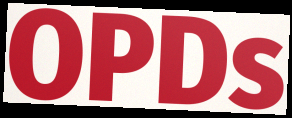
OPDs